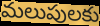
మలుపులకు